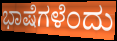
ಭಾಷೆಗಳೆಂದು